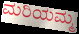
ಮರಿಯಮ್ಮ